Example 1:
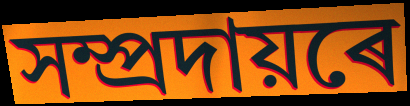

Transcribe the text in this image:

সম্প্ৰদায়ৰে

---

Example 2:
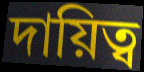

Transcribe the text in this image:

দায়িত্ব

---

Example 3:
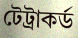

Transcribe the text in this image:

টেট্ৰাকৰ্ড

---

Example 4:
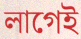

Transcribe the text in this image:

লাগেই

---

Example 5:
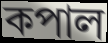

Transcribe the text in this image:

কপাল